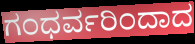
ಗಂಧರ್ವರಿಂದಾದ